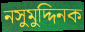
নসুমুদ্দিনক